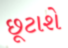
છૂટાશે